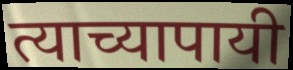
त्याच्यापायी